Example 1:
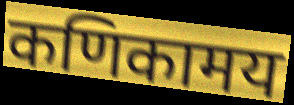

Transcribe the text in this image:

कणिकामय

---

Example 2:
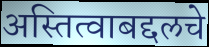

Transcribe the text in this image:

अस्तित्वाबद्दलचे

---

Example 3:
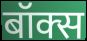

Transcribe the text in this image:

बॉक्‍स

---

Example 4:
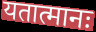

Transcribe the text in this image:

यतात्मानः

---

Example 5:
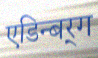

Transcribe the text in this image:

एडिन्बर्ग